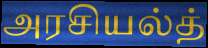
அரசியல்த்